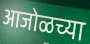
आजोळच्या